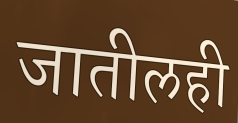
जातीलही